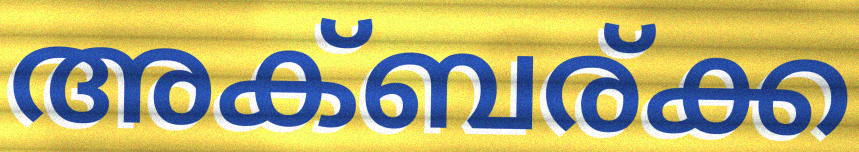
അക്ബര്ക്ക